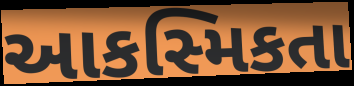
આકસ્મિકતા